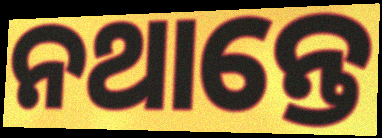
ନଥାନ୍ତେ